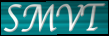
SMVT